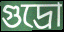
গুদ্ৰো